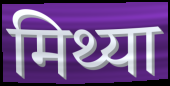
मिथ्या